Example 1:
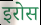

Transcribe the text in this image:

इरोस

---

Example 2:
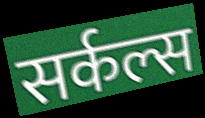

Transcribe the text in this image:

सर्कल्‍स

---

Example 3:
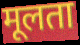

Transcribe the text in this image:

मूलता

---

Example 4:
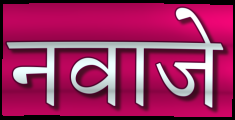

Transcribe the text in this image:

नवाजे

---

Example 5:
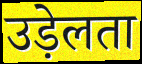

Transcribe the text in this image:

उड़ेलता